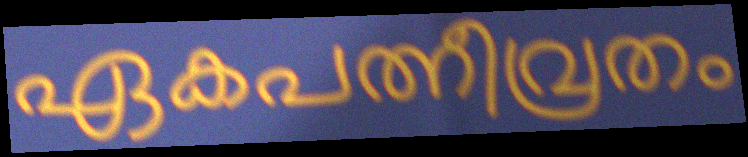
ഏകപത്നീവ്രതം